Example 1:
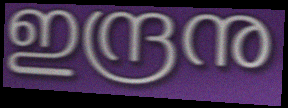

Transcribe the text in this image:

ഇന്ദ്രനു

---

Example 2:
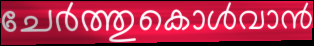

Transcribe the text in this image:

ചേർത്തുകൊൾവാൻ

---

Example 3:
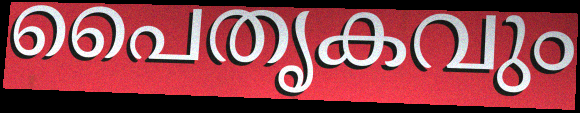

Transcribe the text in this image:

പൈതൃകവും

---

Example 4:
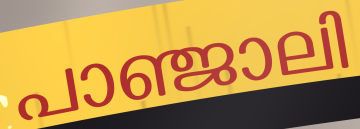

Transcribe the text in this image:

പാഞ്ജാലി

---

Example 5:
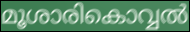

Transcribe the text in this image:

മൂശാരികൊവ്വൽ